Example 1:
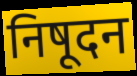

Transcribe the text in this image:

निषूदन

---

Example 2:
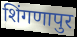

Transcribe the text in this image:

शिंगणापुर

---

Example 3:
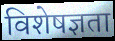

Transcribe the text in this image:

विशेषज्ञता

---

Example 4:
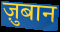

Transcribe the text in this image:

ज़ुबान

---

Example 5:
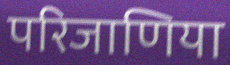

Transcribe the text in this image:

परिजाणिया